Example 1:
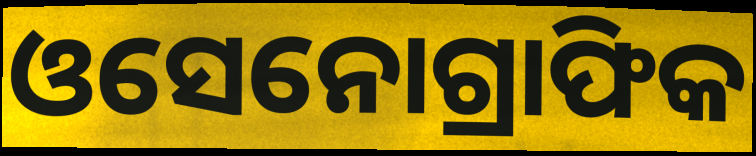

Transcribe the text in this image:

ଓସେନୋଗ୍ରାଫିକ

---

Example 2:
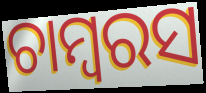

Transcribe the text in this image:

ଚାମ୍ବରସ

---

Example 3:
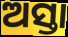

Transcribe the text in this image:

ଅସ୍ତା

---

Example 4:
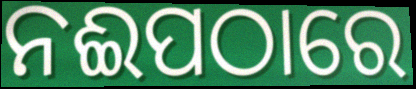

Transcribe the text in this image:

ନଈପଠାରେ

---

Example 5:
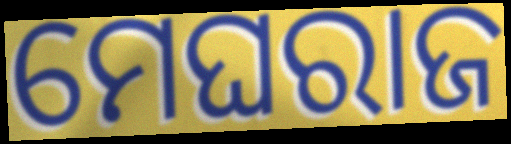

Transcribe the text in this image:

ମେଘରାଜ